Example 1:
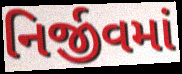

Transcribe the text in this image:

નિર્જીવમાં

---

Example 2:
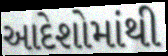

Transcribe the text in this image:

આદેશોમાંથી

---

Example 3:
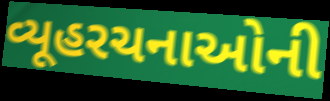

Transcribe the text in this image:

વ્યૂહરચનાઓની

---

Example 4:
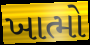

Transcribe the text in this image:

ખાત્મો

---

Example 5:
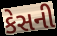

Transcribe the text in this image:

કેસની